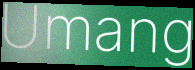
Umang